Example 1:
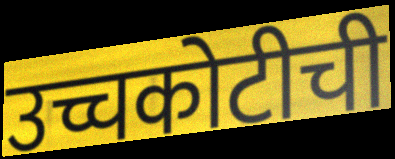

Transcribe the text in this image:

उच्चकोटीची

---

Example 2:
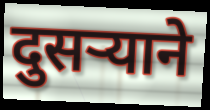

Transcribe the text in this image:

दुसर्‍याने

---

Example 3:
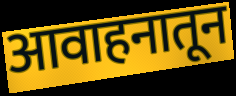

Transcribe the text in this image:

आवाहनातून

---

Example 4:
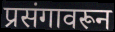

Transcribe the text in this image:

प्रसंगावरून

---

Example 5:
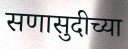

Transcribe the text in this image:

सणासुदीच्या